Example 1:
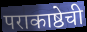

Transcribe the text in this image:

पराकाष्ठेची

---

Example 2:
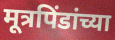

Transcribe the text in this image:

मूत्रपिंडांच्या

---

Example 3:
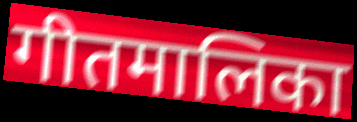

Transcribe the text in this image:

गीतमालिका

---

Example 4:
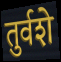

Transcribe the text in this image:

तुर्वशे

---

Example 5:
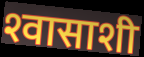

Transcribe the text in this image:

श्वासाशी